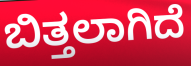
ಬಿತ್ತಲಾಗಿದೆ